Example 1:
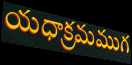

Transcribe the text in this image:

యధాక్రమముగ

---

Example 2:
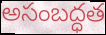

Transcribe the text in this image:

అసంబద్ధత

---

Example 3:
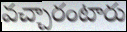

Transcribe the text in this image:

వచ్చారంటారు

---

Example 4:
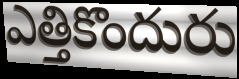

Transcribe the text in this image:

ఎత్తికొందురు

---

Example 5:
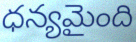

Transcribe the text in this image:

ధన్యమైంది